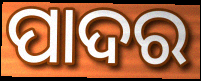
ପାଦର